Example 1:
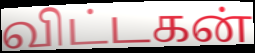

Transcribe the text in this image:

விட்டகன்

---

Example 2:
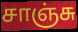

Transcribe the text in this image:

சாஞ்சு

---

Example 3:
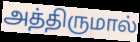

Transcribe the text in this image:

அத்திருமால்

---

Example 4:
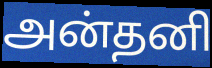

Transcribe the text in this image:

அன்தனி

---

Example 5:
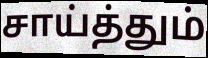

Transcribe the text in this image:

சாய்த்தும்